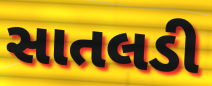
સાતલડી